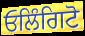
ਓਲਿੰਗਿਟੋ